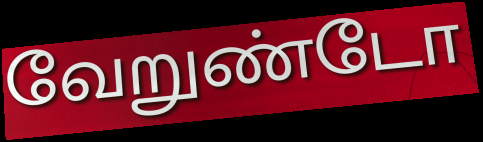
வேறுண்டோ